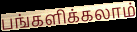
பங்களிக்கலாம்